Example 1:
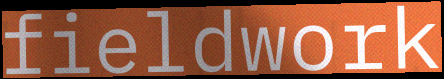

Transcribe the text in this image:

fieldwork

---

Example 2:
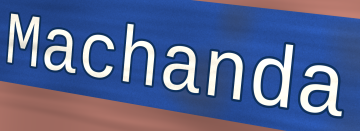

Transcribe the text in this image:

Machanda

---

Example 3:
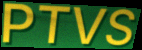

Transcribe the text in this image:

PTVS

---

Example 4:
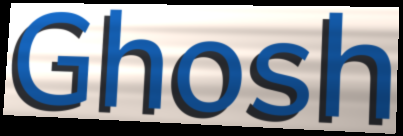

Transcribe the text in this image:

Ghosh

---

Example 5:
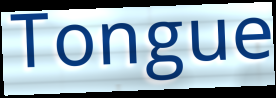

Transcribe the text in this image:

Tongue